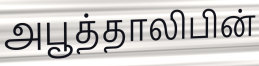
அபூத்தாலிபின்